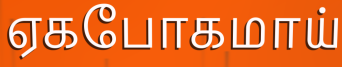
ஏகபோகமாய்